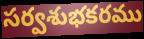
సర్వశుభకరము